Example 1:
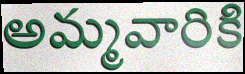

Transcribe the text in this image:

అమ్మవారికి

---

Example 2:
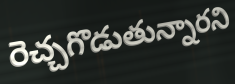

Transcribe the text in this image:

రెచ్చగొడుతున్నారని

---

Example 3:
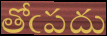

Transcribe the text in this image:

తోఁపదు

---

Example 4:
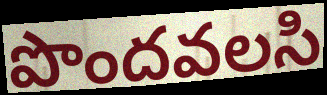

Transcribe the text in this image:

పొందవలసి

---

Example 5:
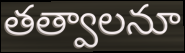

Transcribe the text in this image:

తత్వాలనూ